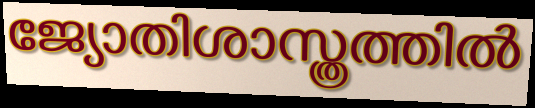
ജ്യോതിശാസ്ത്രത്തിൽ